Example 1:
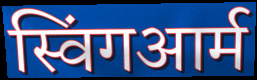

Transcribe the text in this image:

स्विंगआर्म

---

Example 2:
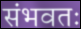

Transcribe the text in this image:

संभवतः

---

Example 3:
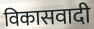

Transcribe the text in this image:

विकासवादी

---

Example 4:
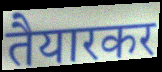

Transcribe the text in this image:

तैयारकर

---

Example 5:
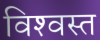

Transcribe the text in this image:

विश्‍वस्त